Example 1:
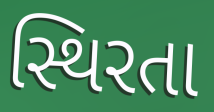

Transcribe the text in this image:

સ્થિરતા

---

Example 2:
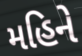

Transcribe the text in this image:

મહિને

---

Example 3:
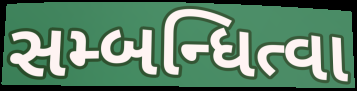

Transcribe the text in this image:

સમ્બન્ધિત્વા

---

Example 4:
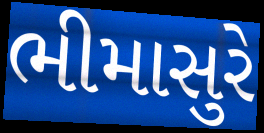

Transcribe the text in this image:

ભીમાસુરે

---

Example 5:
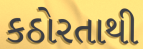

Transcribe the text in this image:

કઠોરતાથી